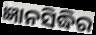
ଜ୍ଞାନସିଦ୍ଧିର